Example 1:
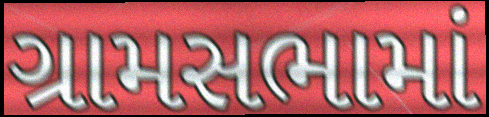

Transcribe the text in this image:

ગ્રામસભામાં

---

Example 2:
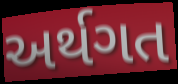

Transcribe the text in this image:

અર્થગત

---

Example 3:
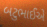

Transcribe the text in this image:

બટુભાઈએ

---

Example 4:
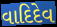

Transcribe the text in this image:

વાદિદેવ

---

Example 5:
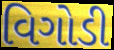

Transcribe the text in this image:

વિગોડી